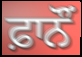
ਫ਼ਾਨੌਂ